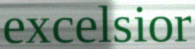
excelsior